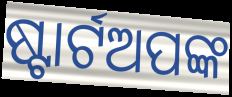
ଷ୍ଟାର୍ଟଅପଙ୍କ